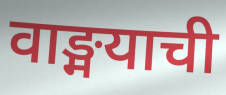
वाङ्मयाची